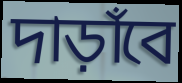
দাড়াঁবে